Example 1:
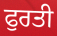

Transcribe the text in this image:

ਫੁਰਤੀ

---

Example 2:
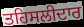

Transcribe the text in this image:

ਤਹਿਸਲੀਦਾਰ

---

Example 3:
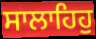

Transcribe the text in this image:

ਸਾਲਾਹਿਹੁ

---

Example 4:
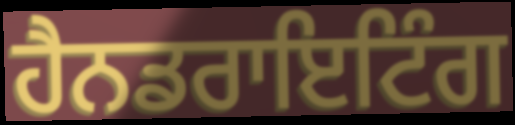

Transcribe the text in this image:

ਹੈਨਡਰਾਇਟਿੰਗ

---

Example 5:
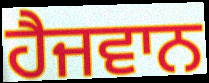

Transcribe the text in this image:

ਹੈਜਵਾਨ